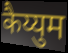
कैय्युम